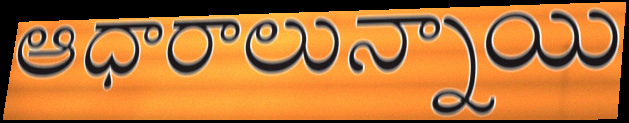
ఆధారాలున్నాయి